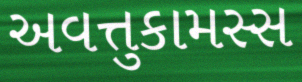
અવત્તુકામસ્સ